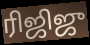
ரிஜிஜு